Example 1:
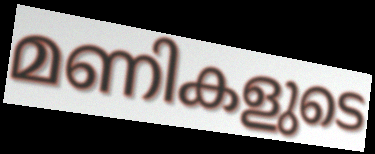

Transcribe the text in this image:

മണികളുടെ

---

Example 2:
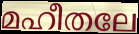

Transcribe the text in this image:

മഹീതലേ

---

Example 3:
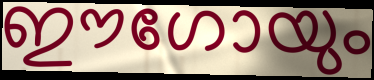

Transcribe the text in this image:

ഈഗോയും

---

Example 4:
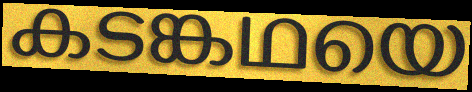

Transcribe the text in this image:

കടങ്കഥയെ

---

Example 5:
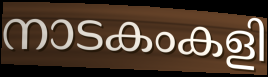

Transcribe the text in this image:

നാടകംകളി